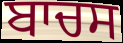
ਬਾਚਸ